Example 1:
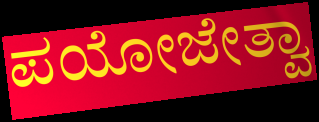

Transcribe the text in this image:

ಪಯೋಜೇತ್ವಾ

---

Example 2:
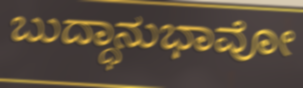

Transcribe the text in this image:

ಬುದ್ಧಾನುಭಾವೋ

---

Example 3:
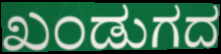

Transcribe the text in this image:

ಖಂಡುಗದ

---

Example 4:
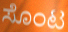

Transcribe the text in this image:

ಸೊಂಟ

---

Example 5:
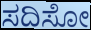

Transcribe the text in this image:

ಸದಿಸೋ